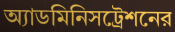
অ্যাডমিনিসট্রেশনের